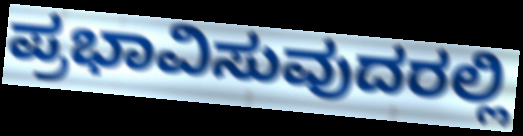
ಪ್ರಭಾವಿಸುವುದರಲ್ಲಿ